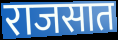
राजसात